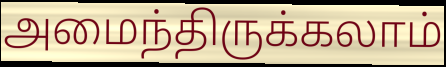
அமைந்திருக்கலாம்